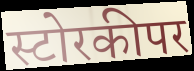
स्टोरकीपर